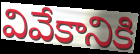
వివేకానికి